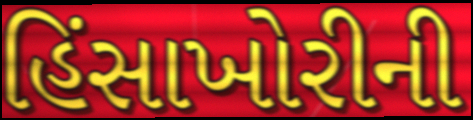
હિંસાખોરીની